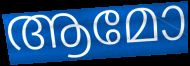
ആമോ